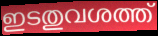
ഇടതുവശത്ത്